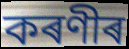
কৰণীৰ